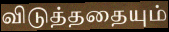
விடுத்ததையும்